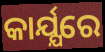
କାର୍ଯ୍ଯରେ